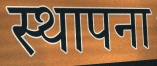
स्थापना